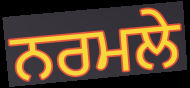
ਨਰਮਲੇ